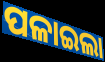
ପଳାଇଲା